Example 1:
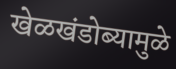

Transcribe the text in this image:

खेळखंडोब्यामुळे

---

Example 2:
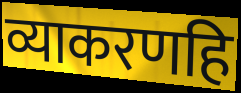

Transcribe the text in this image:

व्याकरणहि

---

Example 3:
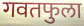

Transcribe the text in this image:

गवतफुला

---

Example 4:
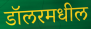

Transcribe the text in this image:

डॉलरमधील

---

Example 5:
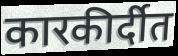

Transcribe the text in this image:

कारकीर्दीत